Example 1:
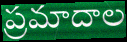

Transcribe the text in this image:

ప్రమాదాల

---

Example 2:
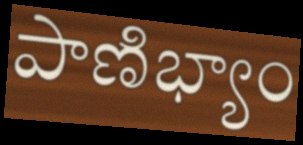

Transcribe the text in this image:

పాణిభ్యాం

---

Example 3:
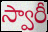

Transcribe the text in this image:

స్వారీ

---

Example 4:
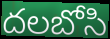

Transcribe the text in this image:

దలబోసి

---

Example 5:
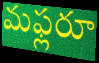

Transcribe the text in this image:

మఫ్లరూ